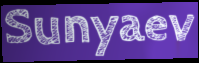
Sunyaev